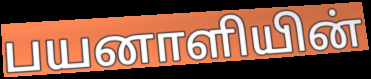
பயனாளியின்